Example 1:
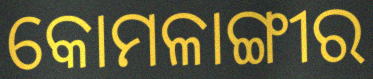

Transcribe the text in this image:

କୋମଳାଙ୍ଗୀର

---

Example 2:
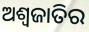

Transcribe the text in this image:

ଅଶ୍ୱଜାତିର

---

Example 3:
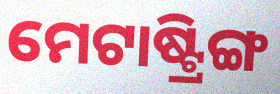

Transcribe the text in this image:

ମେଟାଷ୍ଟ୍ରିଙ୍ଗ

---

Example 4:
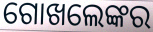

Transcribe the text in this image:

ଗୋଖଲେଙ୍କର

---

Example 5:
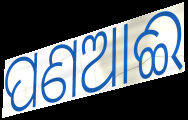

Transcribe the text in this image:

ପଣଆଈ